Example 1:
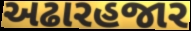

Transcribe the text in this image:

અઢારહજાર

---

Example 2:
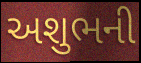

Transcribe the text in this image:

અશુભની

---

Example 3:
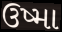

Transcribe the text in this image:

ઉષ્મા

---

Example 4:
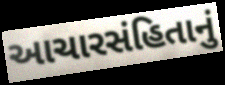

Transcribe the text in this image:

આચારસંહિતાનું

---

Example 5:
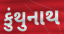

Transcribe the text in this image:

કુંથુનાથ